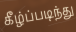
கீழ்ப்படிந்து